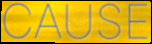
CAUSE